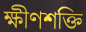
ক্ষীণশক্তি